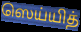
ஸெய்யித்